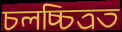
চলচ্চিত্ৰত